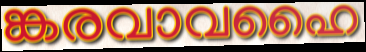
ങ്കരവാവഹൈ